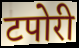
टपोरी